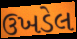
ઉખડેલ